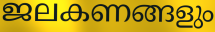
ജലകണങ്ങളും